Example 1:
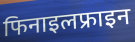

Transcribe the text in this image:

फिनाइलफ्राइन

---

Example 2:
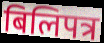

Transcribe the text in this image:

बिलिपत्र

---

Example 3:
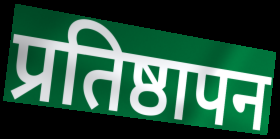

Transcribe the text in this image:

प्रतिष्ठापन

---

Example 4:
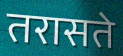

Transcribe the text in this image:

तरासते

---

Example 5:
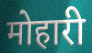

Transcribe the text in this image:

मोहारी